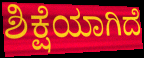
ಶಿಕ್ಷೆಯಾಗಿದೆ